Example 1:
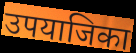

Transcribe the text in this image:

उपयाजिका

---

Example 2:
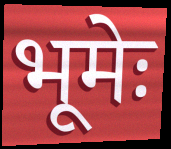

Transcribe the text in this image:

भूमेः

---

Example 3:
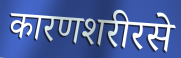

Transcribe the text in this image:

कारणशरीरसे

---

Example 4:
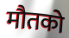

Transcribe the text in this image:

मौतको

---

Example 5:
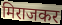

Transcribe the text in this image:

मिराजकर